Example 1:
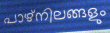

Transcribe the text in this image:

പാഴ്നിലങ്ങളും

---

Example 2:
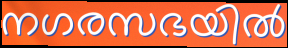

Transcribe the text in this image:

നഗരസഭയിൽ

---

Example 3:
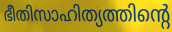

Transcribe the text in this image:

ഭീതിസാഹിത്യത്തിന്റെ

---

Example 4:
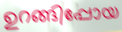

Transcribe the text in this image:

ഉറങ്ങിപ്പോയ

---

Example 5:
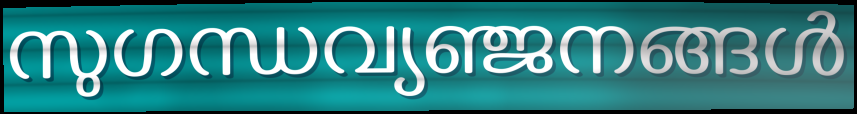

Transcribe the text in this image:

സുഗന്ധവ്യഞ്ജനങ്ങൾ